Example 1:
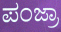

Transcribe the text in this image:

ಪಂಜ್ರಾ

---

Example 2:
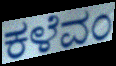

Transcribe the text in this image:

ಕಳೆವಂ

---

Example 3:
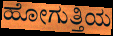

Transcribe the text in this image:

ಹೋಗುತ್ತಿಯ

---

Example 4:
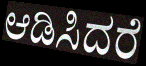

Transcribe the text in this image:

ಆಡಿಸಿದರೆ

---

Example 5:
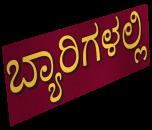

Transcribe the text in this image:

ಬ್ಯಾರಿಗಳಲ್ಲಿ